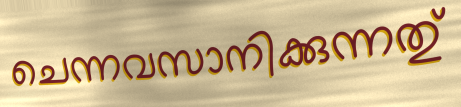
ചെന്നവസാനിക്കുന്നതു്